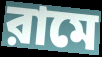
রামে